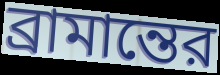
ব্রামান্তের